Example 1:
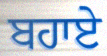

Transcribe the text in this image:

ਬਹਾਏ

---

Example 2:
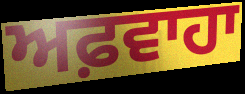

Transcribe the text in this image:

ਅਫ਼ਵਾਹਾ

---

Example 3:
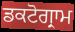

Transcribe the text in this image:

ਡਕਟੋਗ੍ਰਾਮ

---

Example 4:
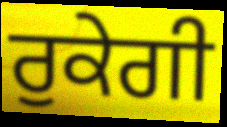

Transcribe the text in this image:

ਰੁਕੇਗੀ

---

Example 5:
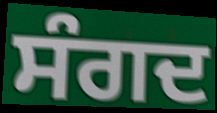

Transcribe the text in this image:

ਸੰਗਦ